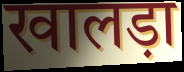
खालड़ा